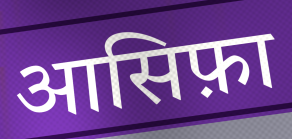
आसिफ़ा